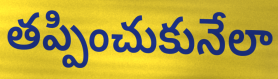
తప్పించుకునేలా